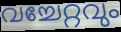
വച്ചേറ്റവും